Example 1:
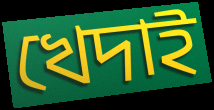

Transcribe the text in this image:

খেদাই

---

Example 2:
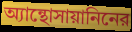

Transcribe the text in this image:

অ্যান্থোসায়ানিনের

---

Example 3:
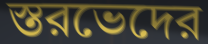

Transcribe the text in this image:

স্তরভেদের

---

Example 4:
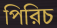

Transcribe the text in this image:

পিরিচ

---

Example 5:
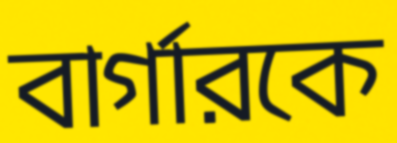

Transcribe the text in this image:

বার্গারকে